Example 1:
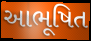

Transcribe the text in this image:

આભૂષિત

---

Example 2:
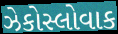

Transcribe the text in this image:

ઝેકોસ્લોવાક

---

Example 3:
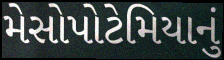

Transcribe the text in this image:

મેસોપોટેમિયાનું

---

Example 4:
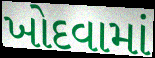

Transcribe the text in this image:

ખોદવામાં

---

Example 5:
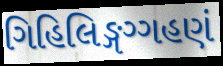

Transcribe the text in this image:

ગિહિલિઙ્ગગ્ગહણં